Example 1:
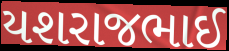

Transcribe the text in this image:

યશરાજભાઈ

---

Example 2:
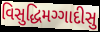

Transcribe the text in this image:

વિસુદ્ધિમગ્ગાદીસુ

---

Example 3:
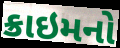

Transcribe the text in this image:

ક્રાઇમનો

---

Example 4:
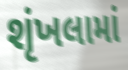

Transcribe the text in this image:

શૃંખલામાં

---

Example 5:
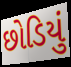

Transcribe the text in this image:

છોડિયું